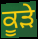
ਕੂਡ਼ੇ